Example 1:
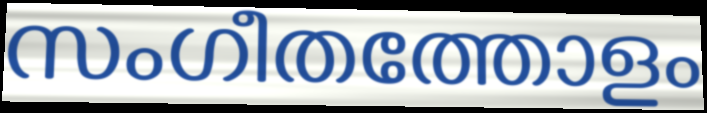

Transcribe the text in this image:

സംഗീതത്തോളം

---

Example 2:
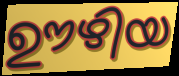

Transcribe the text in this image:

ഊഴിയ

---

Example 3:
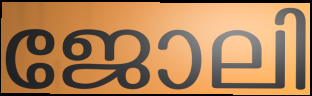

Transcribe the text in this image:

ജോലി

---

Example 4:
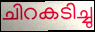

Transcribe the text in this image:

ചിറകടിച്ചു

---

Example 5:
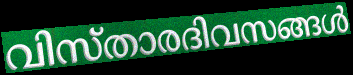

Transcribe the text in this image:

വിസ്താരദിവസങ്ങൾ